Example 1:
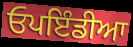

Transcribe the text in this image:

ਓਪਇੰਡੀਆ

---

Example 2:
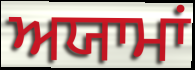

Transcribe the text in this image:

ਅਯਾਮਾਂ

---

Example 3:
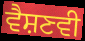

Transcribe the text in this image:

ਵੈਸ਼ਣਵੀ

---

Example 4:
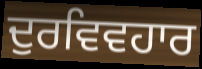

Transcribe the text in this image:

ਦੁਰਵਿਵਹਾਰ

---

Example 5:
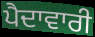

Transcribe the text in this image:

ਪੈਦਾਵਾਰੀ